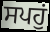
ਸਪਹੁਂ